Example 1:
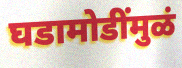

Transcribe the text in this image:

घडामोडींमुळं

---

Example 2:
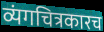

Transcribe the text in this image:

व्यंगचित्रकारच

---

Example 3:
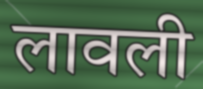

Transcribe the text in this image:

लावली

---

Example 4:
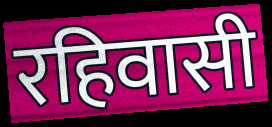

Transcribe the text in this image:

रहिवासी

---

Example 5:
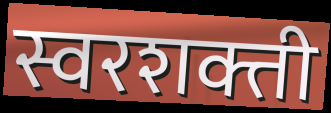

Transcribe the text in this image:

स्वरशक्ती